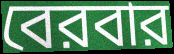
বেরবার